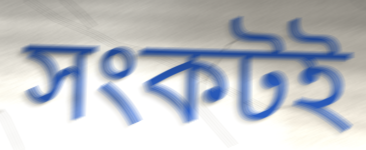
সংকটই